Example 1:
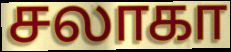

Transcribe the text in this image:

சலாகா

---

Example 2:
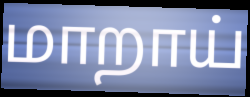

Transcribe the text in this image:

மாறாய்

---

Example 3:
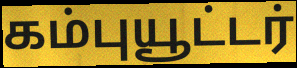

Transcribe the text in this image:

கம்புயூட்டர்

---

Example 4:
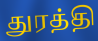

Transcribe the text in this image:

துரத்தி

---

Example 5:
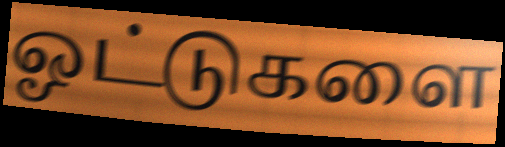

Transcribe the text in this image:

ஓட்டுகளை